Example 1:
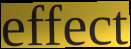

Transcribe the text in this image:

effect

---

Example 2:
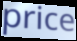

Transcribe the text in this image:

price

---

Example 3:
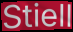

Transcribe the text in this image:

Stiell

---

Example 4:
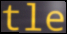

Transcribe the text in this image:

tle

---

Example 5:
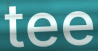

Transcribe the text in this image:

tee